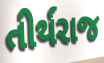
તીર્થરાજ